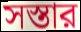
সস্তার